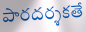
పారదర్శకతే